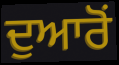
ਦੁਆਰੋਂ